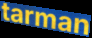
tarman